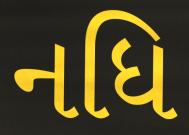
નધિ